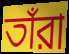
তাঁরা